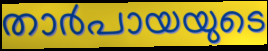
താർപായയുടെ